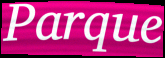
Parque